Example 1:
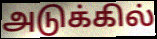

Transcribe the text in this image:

அடுக்கில்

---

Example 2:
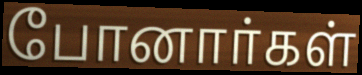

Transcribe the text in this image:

போனார்கள்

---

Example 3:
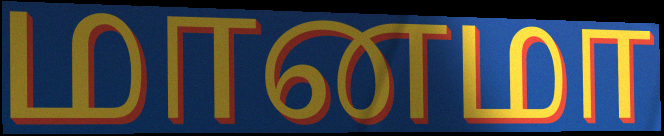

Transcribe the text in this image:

மானமா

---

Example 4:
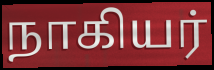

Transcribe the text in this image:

நாகியர்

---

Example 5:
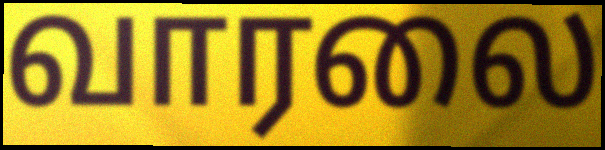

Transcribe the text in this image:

வாரலை